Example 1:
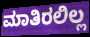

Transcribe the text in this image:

ಮಾತಿರಲಿಲ್ಲ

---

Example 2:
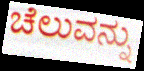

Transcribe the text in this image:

ಚೆಲುವನ್ನು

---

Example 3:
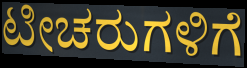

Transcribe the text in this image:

ಟೀಚರುಗಳಿಗೆ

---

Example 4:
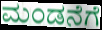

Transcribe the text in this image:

ಮಂಡನೆಗೆ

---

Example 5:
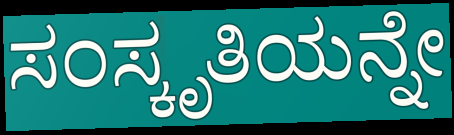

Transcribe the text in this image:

ಸಂಸ್ಕೃತಿಯನ್ನೇ